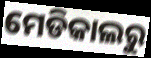
ମେଡିକାଲରୁ